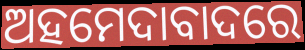
ଅହମେଦାବାଦରେ